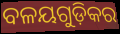
ବଳୟଗୁଡ଼ିକର